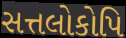
સત્તલોકોપિ